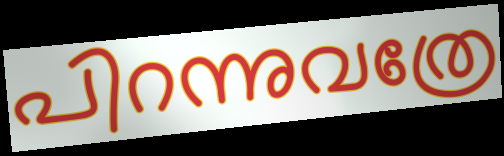
പിറന്നുവത്രേ